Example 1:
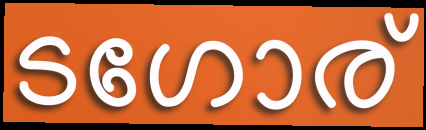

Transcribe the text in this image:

ടഗോര്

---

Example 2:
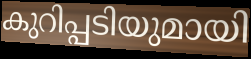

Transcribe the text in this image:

കുറിപ്പടിയുമായി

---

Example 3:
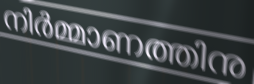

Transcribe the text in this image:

നിർമ്മാണത്തിനു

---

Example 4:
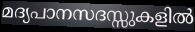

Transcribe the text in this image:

മദ്യപാനസദസ്സുകളിൽ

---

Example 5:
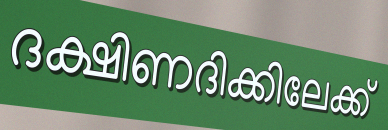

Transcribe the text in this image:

ദക്ഷിണദിക്കിലേക്ക്